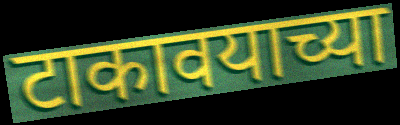
टाकावयाच्या